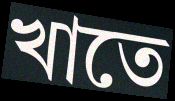
খাতে